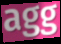
agg